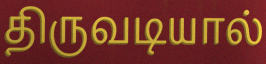
திருவடியால்